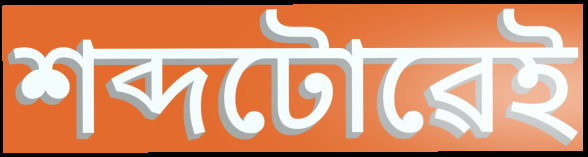
শব্দটোৱেই